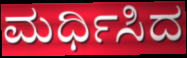
ಮರ್ಧಿಸಿದ